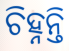
ଚିହ୍ନନ୍ତି